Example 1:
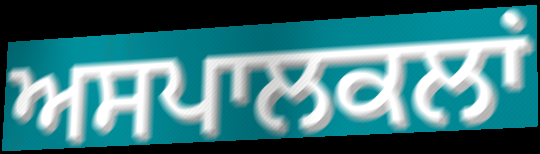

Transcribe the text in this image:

ਅਸਪਾਲਕਲਾਂ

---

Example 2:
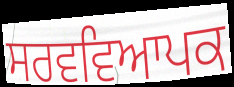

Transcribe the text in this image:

ਸਰਵਵਿਆਪਕ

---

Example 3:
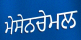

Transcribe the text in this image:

ਮੇਸੇਨਚੇਮਲ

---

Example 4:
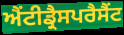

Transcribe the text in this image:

ਐਂਟੀਡ੍ਰੈਸਪਰੈਸੈਂਟ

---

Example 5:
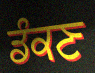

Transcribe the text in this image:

ਡੰਕਣ